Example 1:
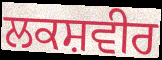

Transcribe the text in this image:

ਲਕਸ਼ਵੀਰ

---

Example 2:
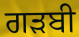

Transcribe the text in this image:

ਗੜਬੀ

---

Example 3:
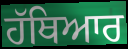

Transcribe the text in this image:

ਹੱਥਿਆਰ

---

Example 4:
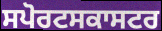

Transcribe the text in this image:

ਸਪੋਰਟਸਕਾਸਟਰ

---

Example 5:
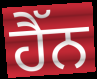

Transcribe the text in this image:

ਹੈੱਨ